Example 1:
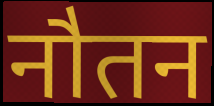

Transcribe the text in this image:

नौतन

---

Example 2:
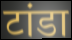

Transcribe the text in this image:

टांडा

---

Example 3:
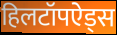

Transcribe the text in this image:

हिलटॉपऐड्स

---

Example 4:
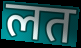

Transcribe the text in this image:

लत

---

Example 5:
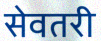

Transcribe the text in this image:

सेवतरी